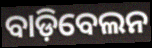
ବାଡ଼ିବେଲନ